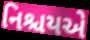
નિશ્ચયએ